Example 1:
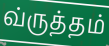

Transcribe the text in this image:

வ்ருத்தம்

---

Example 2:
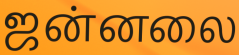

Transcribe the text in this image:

ஜன்னலை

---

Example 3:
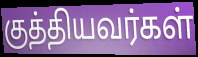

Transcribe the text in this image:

குத்தியவர்கள்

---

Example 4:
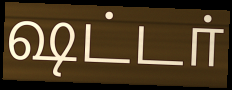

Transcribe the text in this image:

ஷட்டர்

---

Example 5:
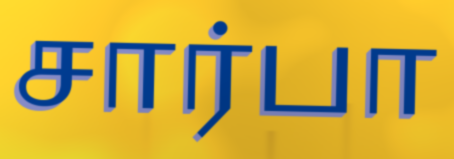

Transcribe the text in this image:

சார்பா